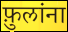
फ़ुलांना